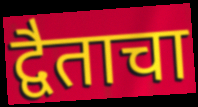
द्वैताचा